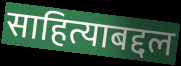
साहित्याबद्दल